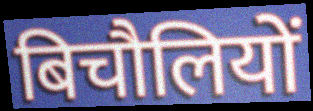
बिचौलियों